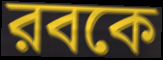
রবকে